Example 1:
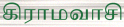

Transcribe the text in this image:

கிராமவாசி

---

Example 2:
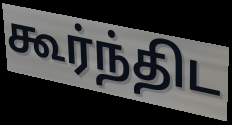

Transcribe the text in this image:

கூர்ந்திட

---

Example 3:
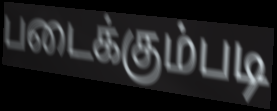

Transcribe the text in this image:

படைக்கும்படி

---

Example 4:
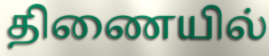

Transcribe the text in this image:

திணையில்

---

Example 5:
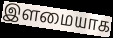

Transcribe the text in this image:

இளமையாக